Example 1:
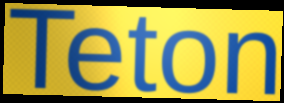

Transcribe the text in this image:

Teton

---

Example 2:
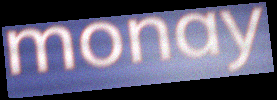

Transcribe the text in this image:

monay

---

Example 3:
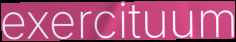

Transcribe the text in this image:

exercituum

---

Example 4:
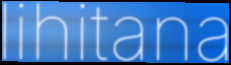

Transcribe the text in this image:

lihitana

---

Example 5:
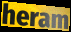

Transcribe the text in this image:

heram